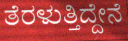
ತೆರಳುತ್ತಿದ್ದೇನೆ